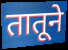
तातूने